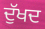
ਦੁੱਖਦ